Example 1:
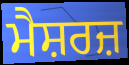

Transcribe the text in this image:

ਮੈਸ਼ਰਜ਼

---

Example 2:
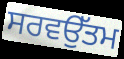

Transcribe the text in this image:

ਸਰਵਉੱਤਮ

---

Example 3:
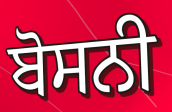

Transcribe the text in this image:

ਬੋਸਨੀ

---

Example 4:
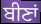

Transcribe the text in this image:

ਬੀਣਾਂ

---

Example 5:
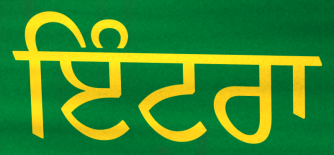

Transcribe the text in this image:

ਇੰਟਰਾ